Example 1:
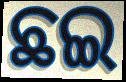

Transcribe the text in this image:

ଛଇ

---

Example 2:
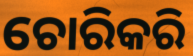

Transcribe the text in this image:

ଚୋରିକରି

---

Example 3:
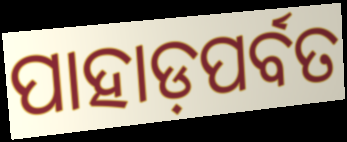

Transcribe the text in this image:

ପାହାଡ଼ପର୍ବତ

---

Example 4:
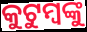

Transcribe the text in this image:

କୁଟୁମ୍ବଙ୍କୁ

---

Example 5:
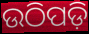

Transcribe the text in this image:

ଉଠିପଡ଼ି